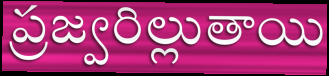
ప్రజ్వరిల్లుతాయి